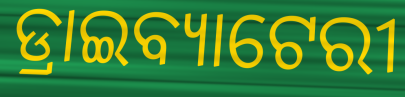
ଡ୍ରାଇବ୍ୟାଟେରୀ